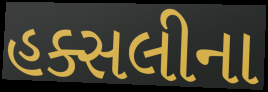
હક્સલીના